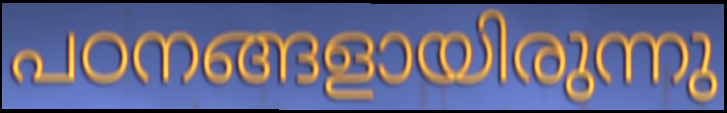
പഠനങ്ങളായിരുന്നു